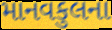
માનવકુલના